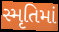
સ્મૃતિમાં